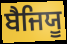
ਬੈਜਿਯੂ